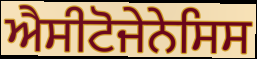
ਐਸੀਟੋਜੇਨੇਸਿਸ